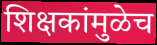
शिक्षकांमुळेच